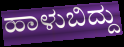
ಹಾಳುಬಿದ್ದು